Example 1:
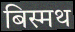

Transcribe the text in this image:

बिस्मथ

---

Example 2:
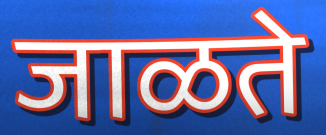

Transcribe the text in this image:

जाळते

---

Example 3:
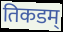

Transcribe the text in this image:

तिकडम्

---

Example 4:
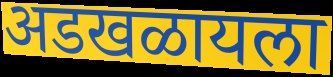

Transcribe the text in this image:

अडखळायला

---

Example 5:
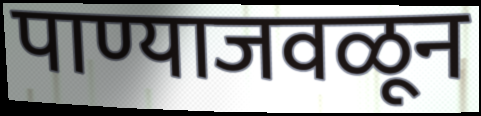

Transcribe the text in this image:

पाण्याजवळून